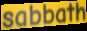
sabbath